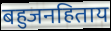
बहुजनहिताय